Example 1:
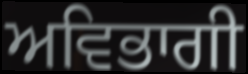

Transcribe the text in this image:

ਅਵਿਭਾਗੀ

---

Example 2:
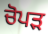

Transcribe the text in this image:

ਚੋਪੜ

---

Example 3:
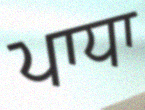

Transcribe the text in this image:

ਪਾਧਾ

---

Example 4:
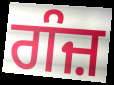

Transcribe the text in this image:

ਗੰਜ਼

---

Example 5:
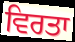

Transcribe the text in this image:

ਵਿਰਤਾ